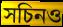
সচিনও